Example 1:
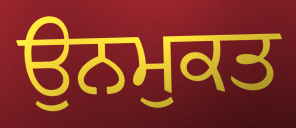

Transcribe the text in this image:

ਉਨਮੁਕਤ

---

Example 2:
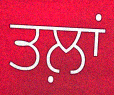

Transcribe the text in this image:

ਤਲ਼ਾਂ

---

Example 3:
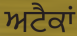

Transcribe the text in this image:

ਅਟੈਕਾਂ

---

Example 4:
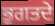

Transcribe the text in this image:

ਭੁਗਤਦੇ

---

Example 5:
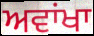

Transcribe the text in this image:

ਅਵਾਂਖਾ